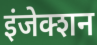
इंजेक्शन